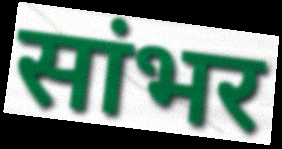
सांभर